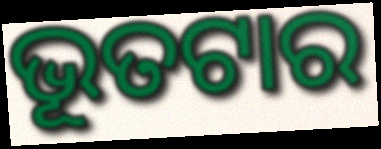
ଭୂତଟାର